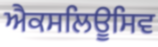
ਐਕਸਲਿਊਸਿਵ